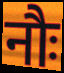
नौः